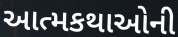
આત્મકથાઓની